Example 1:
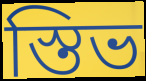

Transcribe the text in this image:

স্তিভ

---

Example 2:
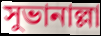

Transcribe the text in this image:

সুভানাল্লা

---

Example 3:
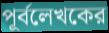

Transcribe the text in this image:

পূর্বলেখকের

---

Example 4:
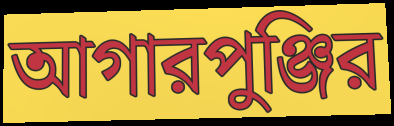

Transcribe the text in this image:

আগারপুঞ্জির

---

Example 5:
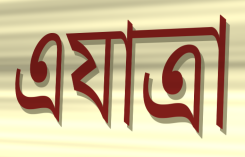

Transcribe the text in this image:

এযাত্রা